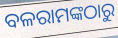
ବଳରାମଙ୍କଠାରୁ